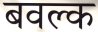
बवल्क